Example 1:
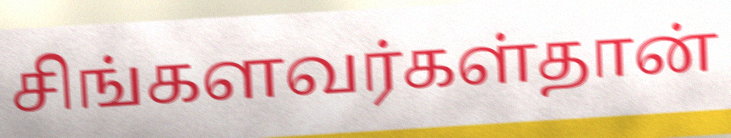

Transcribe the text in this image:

சிங்களவர்கள்தான்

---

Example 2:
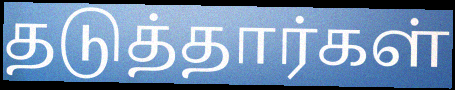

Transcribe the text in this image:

தடுத்தார்கள்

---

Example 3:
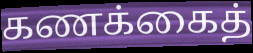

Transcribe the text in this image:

கணக்கைத்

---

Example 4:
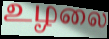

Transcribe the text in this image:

உழலை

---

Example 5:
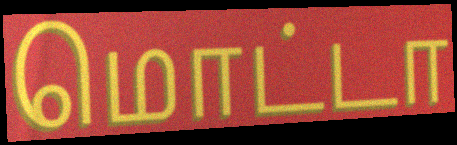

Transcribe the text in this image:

மொட்டா